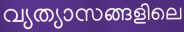
വ്യത്യാസങ്ങളിലെ